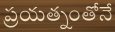
ప్రయత్నంతోనే